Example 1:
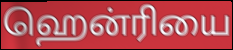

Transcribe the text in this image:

ஹென்ரியை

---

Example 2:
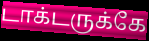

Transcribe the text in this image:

டாக்டருக்கே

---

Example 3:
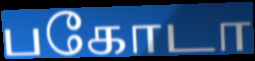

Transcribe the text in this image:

பகோடா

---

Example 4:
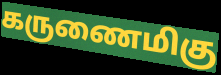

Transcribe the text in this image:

கருணைமிகு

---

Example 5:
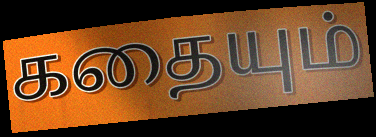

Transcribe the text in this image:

கதையும்